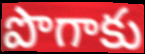
పొగాకు